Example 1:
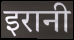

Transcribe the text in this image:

इरानी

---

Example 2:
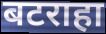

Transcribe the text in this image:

बटराहा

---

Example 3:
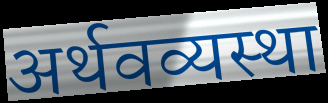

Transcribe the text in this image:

अर्थवव्यस्था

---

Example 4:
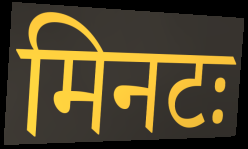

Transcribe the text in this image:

मिनटः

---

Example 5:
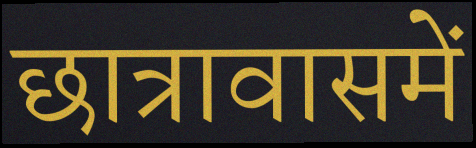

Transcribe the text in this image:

छात्रावासमें